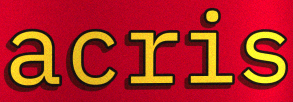
acris